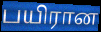
பயிரான